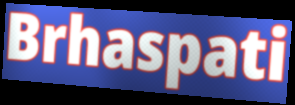
Brhaspati